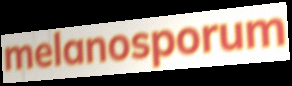
melanosporum